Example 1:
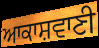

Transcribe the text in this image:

ਆਕਾਸ਼ਵਾਣੀ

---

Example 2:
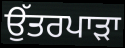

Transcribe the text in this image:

ਉੱਤਰਪਾੜਾ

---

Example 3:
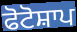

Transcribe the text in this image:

ਫੋਟੋਸ਼ਾਪ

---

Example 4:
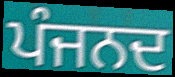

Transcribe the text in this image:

ਪੰਜਨਦ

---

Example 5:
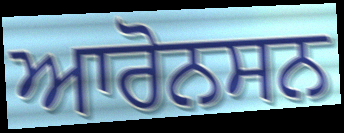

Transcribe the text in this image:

ਆਰੋਨਸਨ